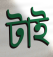
টাই